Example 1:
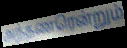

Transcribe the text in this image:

அந்தணரென்றும்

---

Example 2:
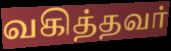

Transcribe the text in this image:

வகித்தவர்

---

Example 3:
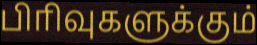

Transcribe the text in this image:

பிரிவுகளுக்கும்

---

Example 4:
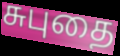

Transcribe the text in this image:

சுபுதை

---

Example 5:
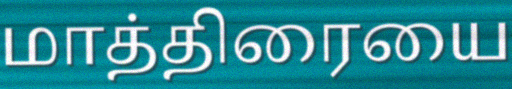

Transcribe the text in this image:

மாத்திரையை